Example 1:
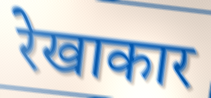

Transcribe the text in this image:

रेखाकार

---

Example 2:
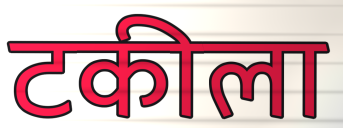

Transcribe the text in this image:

टकीला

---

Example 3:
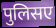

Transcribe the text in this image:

पुलिसए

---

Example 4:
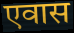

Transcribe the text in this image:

एवास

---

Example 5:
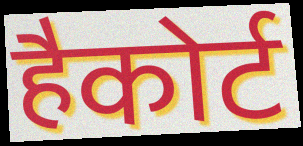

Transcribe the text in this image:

हैकोर्ट